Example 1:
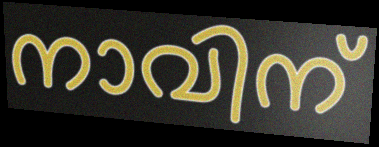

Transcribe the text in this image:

നാവിന്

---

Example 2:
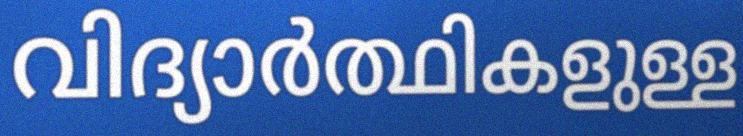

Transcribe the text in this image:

വിദ്യാർത്ഥികളുള്ള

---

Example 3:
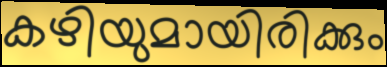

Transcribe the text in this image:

കഴിയുമായിരിക്കും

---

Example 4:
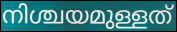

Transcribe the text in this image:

നിശ്ചയമുള്ളത്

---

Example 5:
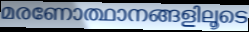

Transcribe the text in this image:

മരണോത്ഥാനങ്ങളിലൂടെ